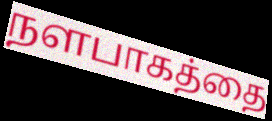
நளபாகத்தை